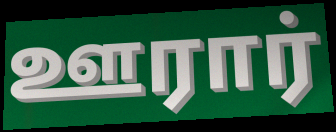
ஊரார்